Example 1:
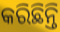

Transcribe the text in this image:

କରିଛିନ୍ତି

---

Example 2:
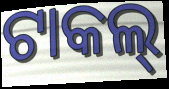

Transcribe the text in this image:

ଟାକଲ୍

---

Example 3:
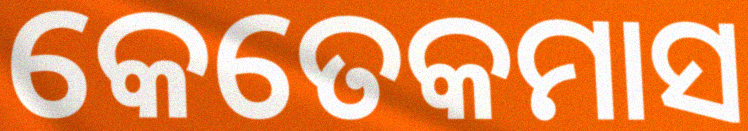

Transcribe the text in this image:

କେତେକମାସ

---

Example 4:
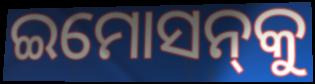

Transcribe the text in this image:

ଇମୋସନ୍‌କୁ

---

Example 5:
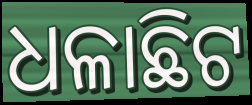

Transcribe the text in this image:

ଧଳାଛିଟ